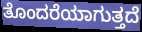
ತೊಂದರೆಯಾಗುತ್ತದೆ